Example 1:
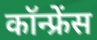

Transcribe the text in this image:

कॉन्फ्रेंस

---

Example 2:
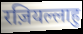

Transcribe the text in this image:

रज़ियल्लाहु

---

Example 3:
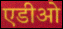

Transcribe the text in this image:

एडीओ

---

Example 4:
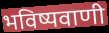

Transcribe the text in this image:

भविष्यवाणी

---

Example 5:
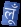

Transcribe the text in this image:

लूँ